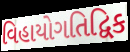
વિહાયોગતિદ્વિક